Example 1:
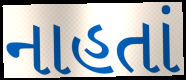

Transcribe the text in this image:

નાહતાં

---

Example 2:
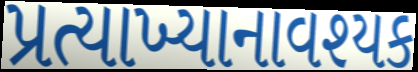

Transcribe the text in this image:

પ્રત્યાખ્યાનાવશ્યક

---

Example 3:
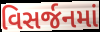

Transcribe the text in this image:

વિસર્જનમાં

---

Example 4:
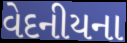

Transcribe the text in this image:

વેદનીયના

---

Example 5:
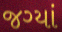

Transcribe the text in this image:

જગ્યાં